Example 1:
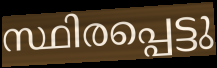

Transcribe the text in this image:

സ്ഥിരപ്പെട്ടു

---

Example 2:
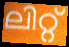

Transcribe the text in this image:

ലിറ്റ്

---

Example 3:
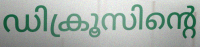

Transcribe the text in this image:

ഡിക്രൂസിന്റെ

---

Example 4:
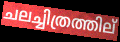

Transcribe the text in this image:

ചലച്ചിത്രത്തില്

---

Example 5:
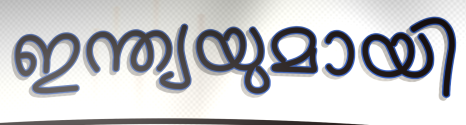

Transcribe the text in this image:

ഇന്ത്യയുമായി